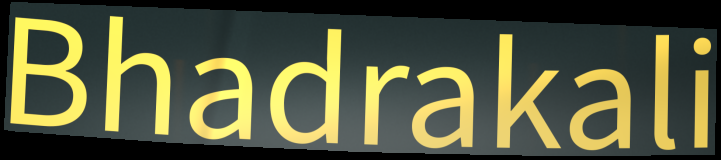
Bhadrakali